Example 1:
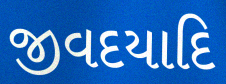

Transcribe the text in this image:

જીવદયાદિ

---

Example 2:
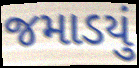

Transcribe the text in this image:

જમાડયું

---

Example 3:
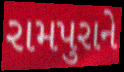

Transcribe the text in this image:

રામપુરાને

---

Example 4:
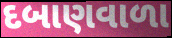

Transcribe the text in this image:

દબાણવાળા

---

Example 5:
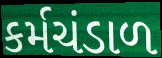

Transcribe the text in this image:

કર્મચંડાળ